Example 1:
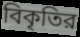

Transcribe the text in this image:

বিকৃতির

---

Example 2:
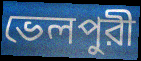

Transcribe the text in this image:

ভেলপুরী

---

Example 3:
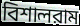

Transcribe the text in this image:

বিশালরাম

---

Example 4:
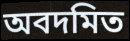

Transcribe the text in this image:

অবদমিত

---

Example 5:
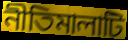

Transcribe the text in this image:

নীতিমালাটি